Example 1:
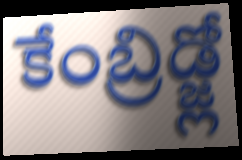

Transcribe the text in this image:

కేంబ్రిడ్జ్లో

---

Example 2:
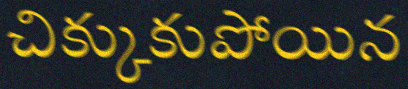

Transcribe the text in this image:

చిక్కుకుపోయిన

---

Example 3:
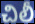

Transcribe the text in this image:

చిలీ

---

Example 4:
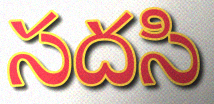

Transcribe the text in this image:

సదసి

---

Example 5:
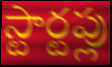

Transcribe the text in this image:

స్టార్టప్లు